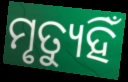
ମୃତ୍ୟୁହିଁ